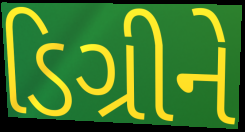
ડિગ્રીને